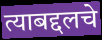
त्याबद्दलचे